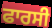
ਫਾਰਸੀ